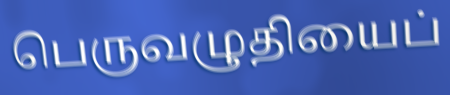
பெருவழுதியைப்